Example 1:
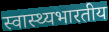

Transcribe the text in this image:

स्वास्थ्यभारतीय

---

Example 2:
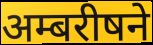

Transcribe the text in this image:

अम्बरीषने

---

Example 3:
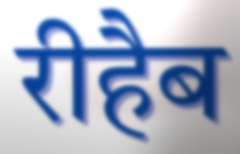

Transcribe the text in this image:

रीहैब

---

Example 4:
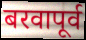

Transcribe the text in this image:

बरवापूर्व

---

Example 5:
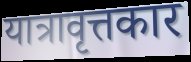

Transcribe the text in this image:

यात्रावृत्तकार